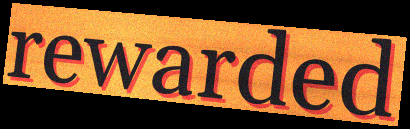
rewarded